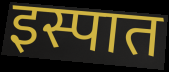
इस्पात